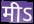
मीऽ